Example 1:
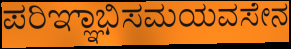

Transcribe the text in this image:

ಪರಿಞ್ಞಾಭಿಸಮಯವಸೇನ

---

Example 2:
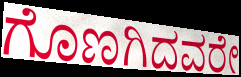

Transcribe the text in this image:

ಗೊಣಗಿದವರೇ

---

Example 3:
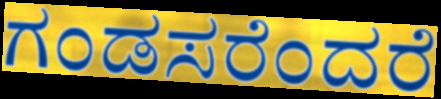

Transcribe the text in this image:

ಗಂಡಸರೆಂದರೆ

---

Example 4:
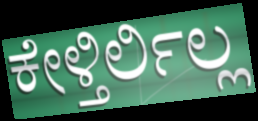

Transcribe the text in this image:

ಕೇಳ್ತಿರ್ಲಿಲ್ಲ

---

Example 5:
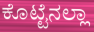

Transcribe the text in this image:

ಕೊಟ್ಟೆನಲ್ಲಾ